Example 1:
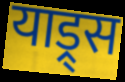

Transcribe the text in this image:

याड्र्स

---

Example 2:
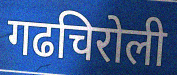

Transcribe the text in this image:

गढचिरोली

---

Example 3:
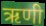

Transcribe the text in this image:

ऋणी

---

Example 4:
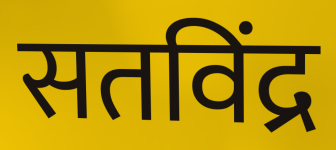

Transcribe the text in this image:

सतविंद्र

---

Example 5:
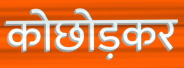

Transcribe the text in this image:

कोछोड़कर